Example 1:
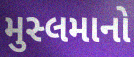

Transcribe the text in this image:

મુસ્લમાનો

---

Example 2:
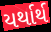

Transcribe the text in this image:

યર્થાર્થ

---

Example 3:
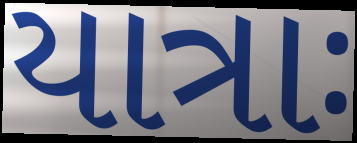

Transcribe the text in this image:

યાત્રાઃ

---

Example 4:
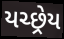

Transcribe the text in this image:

યચ્છ્રેય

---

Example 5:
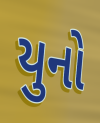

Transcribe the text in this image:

યુનો